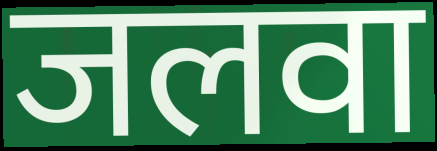
जलवा